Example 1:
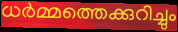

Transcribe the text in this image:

ധർമ്മത്തെക്കുറിച്ചും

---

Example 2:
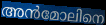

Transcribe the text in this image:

അൻമോലിനെ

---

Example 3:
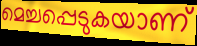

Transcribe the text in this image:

മെച്ചപ്പെടുകയാണ്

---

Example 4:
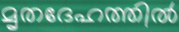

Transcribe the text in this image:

മൃതദേഹത്തിൽ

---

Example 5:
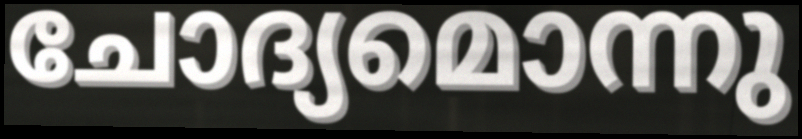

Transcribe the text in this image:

ചോദ്യമൊന്നു